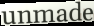
unmade